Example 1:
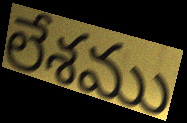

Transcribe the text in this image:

లేశము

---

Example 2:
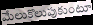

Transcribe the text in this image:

మేలుకొలుపుకుంటూ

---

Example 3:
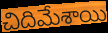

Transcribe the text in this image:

చిదిమేశాయి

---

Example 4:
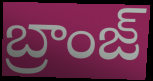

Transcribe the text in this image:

బ్రాంజ్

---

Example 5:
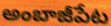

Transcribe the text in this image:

అంబాజీపేట